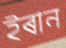
ইৰান